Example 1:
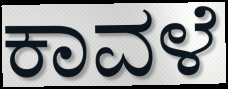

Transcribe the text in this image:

ಕಾವಳೆ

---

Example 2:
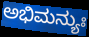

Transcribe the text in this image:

ಅಭಿಮನ್ಯುಃ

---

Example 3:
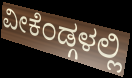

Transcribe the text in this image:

ವೀಕೆಂಡ್ಗಳಲ್ಲಿ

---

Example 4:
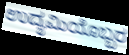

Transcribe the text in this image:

ಉದ್ಯಮಿಯೊಬ್ಬರ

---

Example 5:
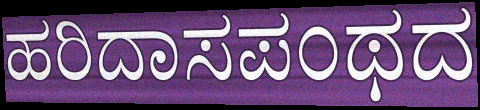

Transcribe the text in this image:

ಹರಿದಾಸಪಂಥದ